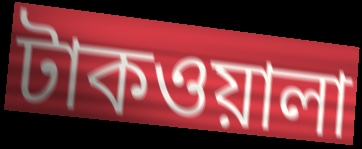
টাকওয়ালা